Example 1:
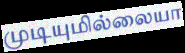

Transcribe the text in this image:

முடியுமில்லையா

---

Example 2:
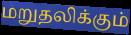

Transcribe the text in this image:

மறுதலிக்கும்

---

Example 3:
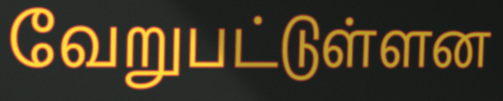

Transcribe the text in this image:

வேறுபட்டுள்ளன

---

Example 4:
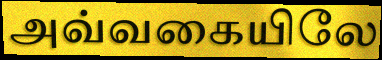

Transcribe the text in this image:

அவ்வகையிலே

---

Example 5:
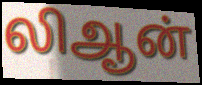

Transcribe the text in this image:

லிஆன்